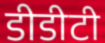
डीडीटी